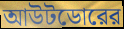
আউটডোরের